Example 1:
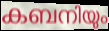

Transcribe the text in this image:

കബനിയും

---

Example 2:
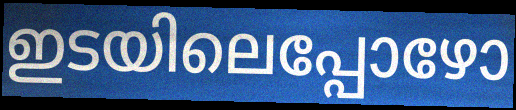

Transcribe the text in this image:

ഇടയിലെപ്പോഴോ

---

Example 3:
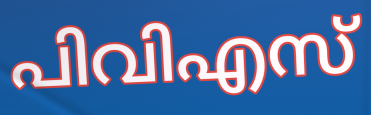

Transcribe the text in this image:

പിവിഎസ്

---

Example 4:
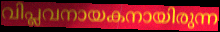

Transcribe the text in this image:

വിപ്ലവനായകനായിരുന്ന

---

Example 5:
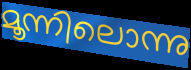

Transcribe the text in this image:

മൂന്നിലൊന്നു